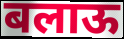
बलाऊ